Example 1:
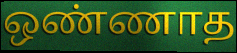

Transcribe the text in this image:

ஒண்ணாத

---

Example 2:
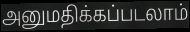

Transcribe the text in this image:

அனுமதிக்கப்படலாம்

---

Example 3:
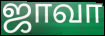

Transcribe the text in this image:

ஜாவா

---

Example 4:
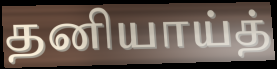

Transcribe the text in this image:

தனியாய்த்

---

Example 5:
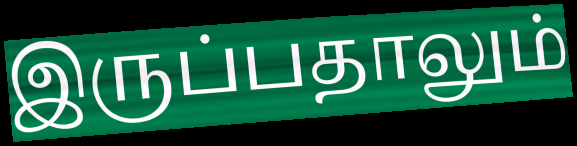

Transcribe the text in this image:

இருப்பதாலும்